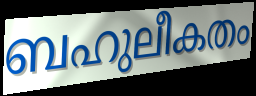
ബഹുലീകതം